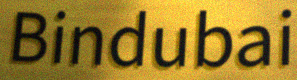
Bindubai